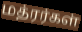
மத்ரர்கள்